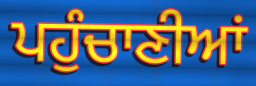
ਪਹੁੰਚਾਣੀਆਂ